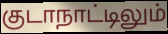
குடாநாட்டிலும்